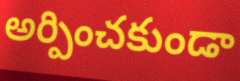
అర్పించకుండా